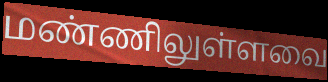
மண்ணிலுள்ளவை